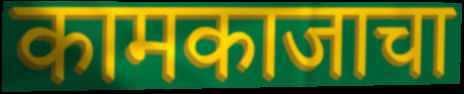
कामकाजाचा